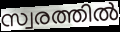
സ്വരത്തിൽ